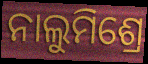
ନାଲୁମିଶ୍ରେ